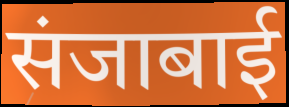
संजाबाई